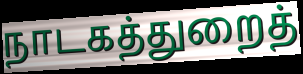
நாடகத்துறைத்